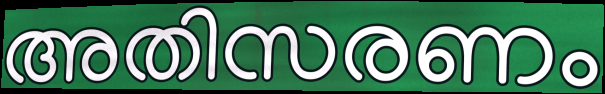
അതിസരണം